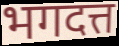
भगदत्त